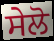
ਸੇਲੋ